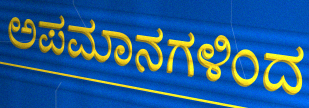
ಅಪಮಾನಗಳಿಂದ